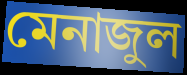
মেনাজুল